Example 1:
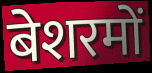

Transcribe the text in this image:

बेशरमों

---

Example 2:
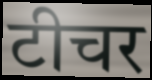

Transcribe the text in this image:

टीचर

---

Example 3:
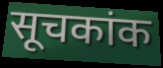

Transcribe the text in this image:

सूचकांक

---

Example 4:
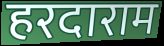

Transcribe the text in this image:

हरदाराम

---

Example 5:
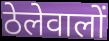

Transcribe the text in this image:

ठेलेवालों